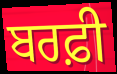
ਬਰਫ਼ੀ